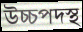
উচ্চপদস্থ